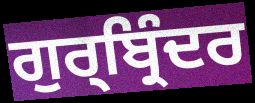
ਗੁਰ੍ਬ੍ਰਿੰਦਰ